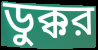
ডুক্কর